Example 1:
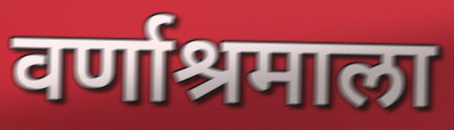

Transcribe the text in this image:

वर्णाश्रमाला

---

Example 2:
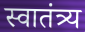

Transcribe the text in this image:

स्वातंत्र्य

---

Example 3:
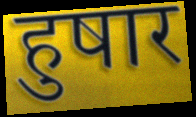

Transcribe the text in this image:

हुषार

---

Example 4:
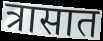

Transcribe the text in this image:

त्रासात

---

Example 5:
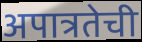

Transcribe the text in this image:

अपात्रतेची